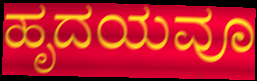
ಹೃದಯವೂ